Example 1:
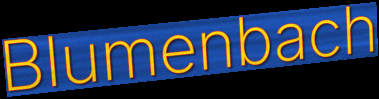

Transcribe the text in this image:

Blumenbach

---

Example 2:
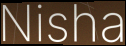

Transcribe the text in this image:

Nisha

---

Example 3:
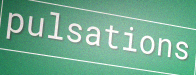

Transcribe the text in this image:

pulsations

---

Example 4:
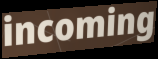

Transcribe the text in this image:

incoming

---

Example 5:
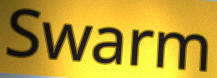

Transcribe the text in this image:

Swarm